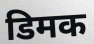
डिमक